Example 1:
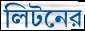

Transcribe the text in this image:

লিটনের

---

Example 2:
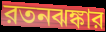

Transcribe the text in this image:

রতনঝঙ্কার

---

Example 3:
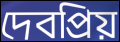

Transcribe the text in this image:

দেবপ্রিয়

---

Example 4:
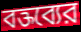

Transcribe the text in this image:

বক্তব্যের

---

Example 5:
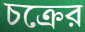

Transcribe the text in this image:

চক্রের